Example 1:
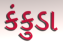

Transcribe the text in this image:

કંકુડા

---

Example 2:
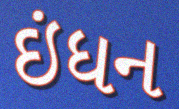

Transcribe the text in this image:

ઇંધન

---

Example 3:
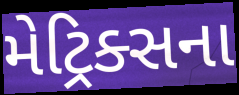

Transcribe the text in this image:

મેટ્રિક્સના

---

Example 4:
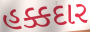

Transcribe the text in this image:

હક્કદાર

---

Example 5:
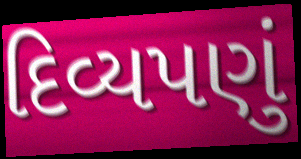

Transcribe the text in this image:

દિવ્યપણું